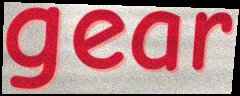
gear